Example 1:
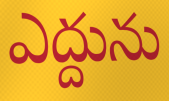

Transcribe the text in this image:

ఎద్దును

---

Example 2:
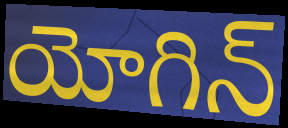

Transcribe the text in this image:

యోగిన్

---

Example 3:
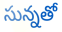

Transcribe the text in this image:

సున్నతో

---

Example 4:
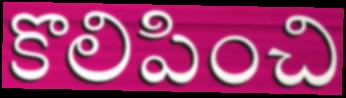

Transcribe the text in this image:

కొలిపించి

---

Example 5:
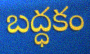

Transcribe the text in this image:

బద్ధకం